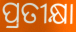
ପ୍ରତୀକ୍ଷା